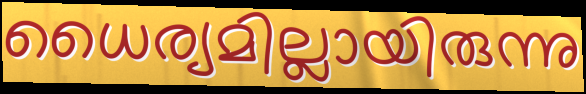
ധൈര്യമില്ലായിരുന്നു